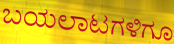
ಬಯಲಾಟಗಳಿಗೂ